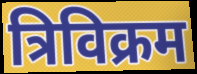
त्रिविक्रम